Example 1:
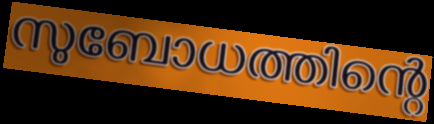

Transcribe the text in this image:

സുബോധത്തിന്റെ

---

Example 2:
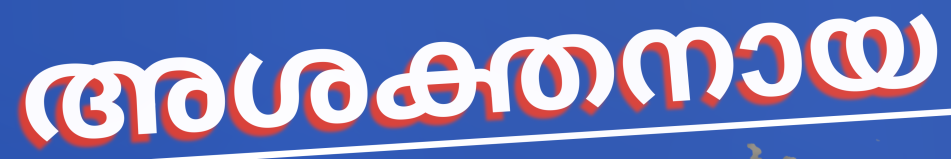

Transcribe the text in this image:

അശക്തനായ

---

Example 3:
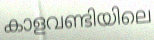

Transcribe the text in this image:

കാളവണ്ടിയിലെ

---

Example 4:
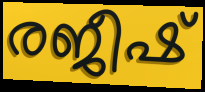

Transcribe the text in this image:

രജീഷ്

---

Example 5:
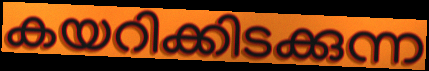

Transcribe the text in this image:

കയറിക്കിടക്കുന്ന